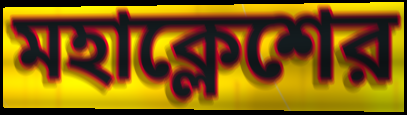
মহাক্লেশের